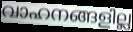
വാഹനങ്ങളില്ല